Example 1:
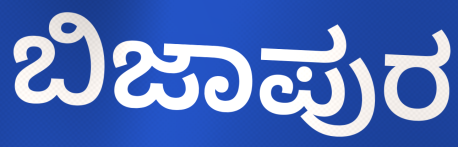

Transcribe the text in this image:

ಬಿಜಾಪುರ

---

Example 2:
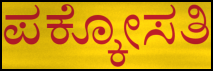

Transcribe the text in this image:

ಪಕ್ಕೋಸತಿ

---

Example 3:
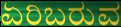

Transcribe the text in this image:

ಏರಿಬರುವ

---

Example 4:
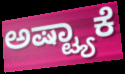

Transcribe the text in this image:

ಅಷ್ಟ್ಯಾಕೆ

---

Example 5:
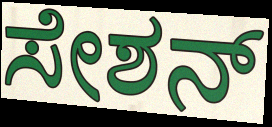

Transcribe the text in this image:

ಸೇಶನ್